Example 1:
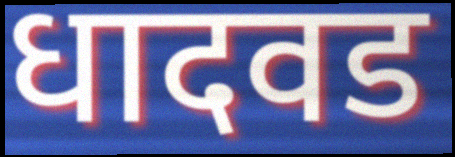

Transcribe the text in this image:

धादवड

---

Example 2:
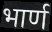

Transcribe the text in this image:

भार्ण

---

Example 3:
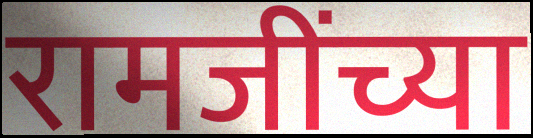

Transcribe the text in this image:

रामजींच्या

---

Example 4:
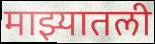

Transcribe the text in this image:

माझ्यातली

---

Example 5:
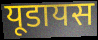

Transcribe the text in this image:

यूडायस